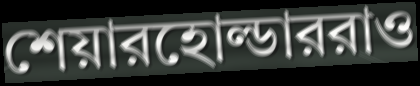
শেয়ারহোল্ডাররাও